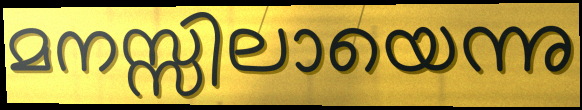
മനസ്സിലായെന്നു